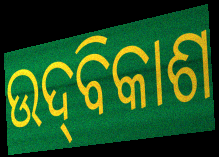
ଉଦ୍‌ବିକାଶ